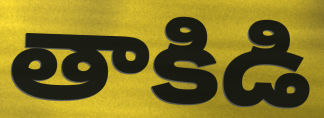
తాకిడి